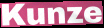
Kunze